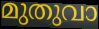
മുതുവാ